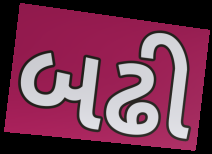
બઢી